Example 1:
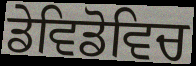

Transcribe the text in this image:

ਡੇਵਿਡੋਵਿਚ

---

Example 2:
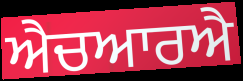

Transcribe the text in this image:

ਐਚਆਰਐ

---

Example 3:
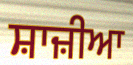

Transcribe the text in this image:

ਸ਼ਾਜ਼ੀਆ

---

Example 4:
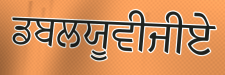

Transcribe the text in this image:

ਡਬਲਯੂਵੀਜੀਏ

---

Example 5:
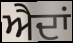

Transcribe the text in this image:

ਐਦਾਂ